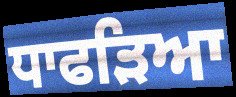
ਧਾਫੜਿਆ